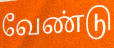
வேண்டு